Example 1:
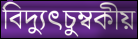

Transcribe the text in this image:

বিদ্যুৎচুম্বকীয়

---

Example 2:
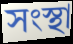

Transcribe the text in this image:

সংস্থা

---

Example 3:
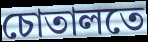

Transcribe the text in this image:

চোতালতে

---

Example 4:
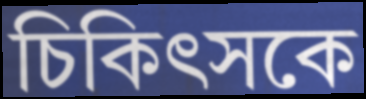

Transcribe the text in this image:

চিকিৎসকে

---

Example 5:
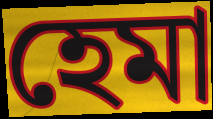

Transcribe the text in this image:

হেমা